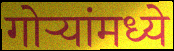
गोऱ्यांमध्ये